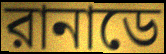
রানাডে